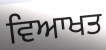
ਵਿਆਖਤ